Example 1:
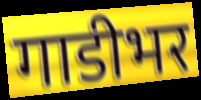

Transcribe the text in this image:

गाडीभर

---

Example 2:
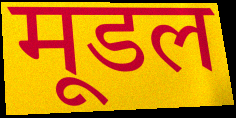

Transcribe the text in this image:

मूडल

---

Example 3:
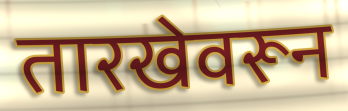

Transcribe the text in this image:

तारखेवरून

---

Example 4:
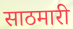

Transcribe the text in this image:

साठमारी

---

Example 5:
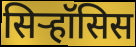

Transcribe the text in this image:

सिऱ्हॉसिस